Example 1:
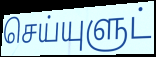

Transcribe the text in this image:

செய்யுளுட்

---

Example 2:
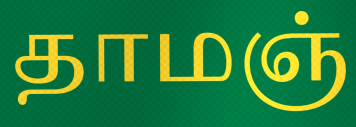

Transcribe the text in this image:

தாமஞ்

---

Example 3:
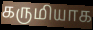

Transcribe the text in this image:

கருமியாக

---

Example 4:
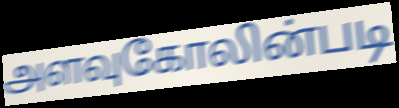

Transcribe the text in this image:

அளவுகோலின்படி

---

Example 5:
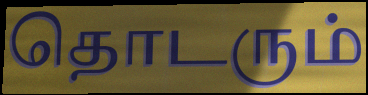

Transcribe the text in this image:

தொடரும்